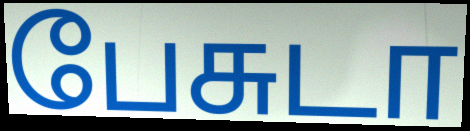
பேசுடா